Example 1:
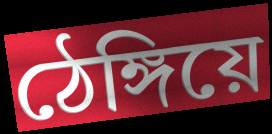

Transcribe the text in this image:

ঠেঙ্গিয়ে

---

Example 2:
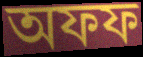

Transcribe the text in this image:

অফফ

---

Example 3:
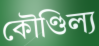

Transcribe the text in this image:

কৌণ্ডিল্য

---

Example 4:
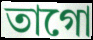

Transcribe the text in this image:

তাগো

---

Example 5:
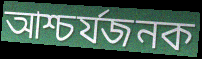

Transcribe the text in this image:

আশ্চর্যজনক